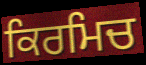
ਕਿਰਮਿਚ